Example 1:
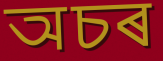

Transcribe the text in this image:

অচৰ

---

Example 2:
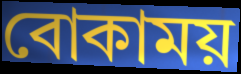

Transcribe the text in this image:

বোকাময়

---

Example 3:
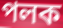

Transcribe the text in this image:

পলক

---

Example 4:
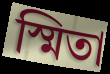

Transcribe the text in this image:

স্মিতা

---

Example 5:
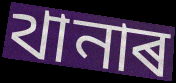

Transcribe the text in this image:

থানাৰ